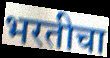
भरतीचा